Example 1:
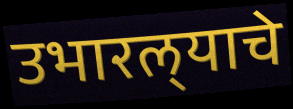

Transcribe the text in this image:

उभारल्याचे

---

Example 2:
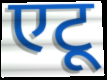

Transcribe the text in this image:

एटू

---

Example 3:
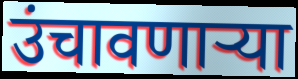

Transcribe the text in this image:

उंचावणाऱ्या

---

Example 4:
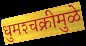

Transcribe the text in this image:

धुमश्चक्रीमुळे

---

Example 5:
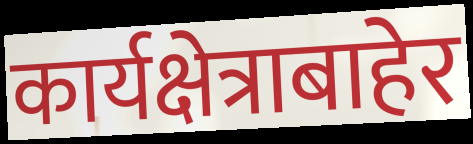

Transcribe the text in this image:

कार्यक्षेत्राबाहेर